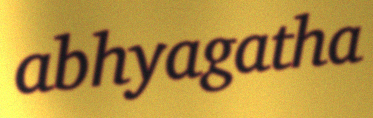
abhyagatha